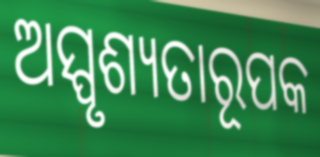
ଅସ୍ପୃଶ୍ୟତାରୂପକ